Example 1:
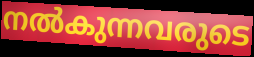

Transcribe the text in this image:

നൽകുന്നവരുടെ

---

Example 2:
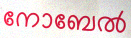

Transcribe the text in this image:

നോബേൽ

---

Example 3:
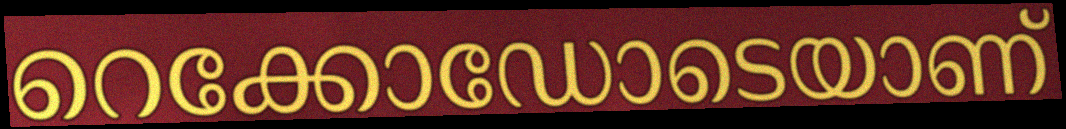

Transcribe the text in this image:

റെക്കോഡോടെയാണ്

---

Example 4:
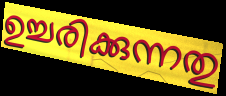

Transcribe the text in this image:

ഉച്ചരിക്കുന്നതു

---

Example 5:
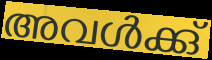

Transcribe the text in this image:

അവൾക്കു്